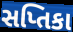
સપ્તિકા